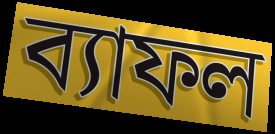
ব্যাফল